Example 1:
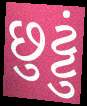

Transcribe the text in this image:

છુટ્ટું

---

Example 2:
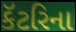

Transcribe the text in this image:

કૅટરિના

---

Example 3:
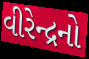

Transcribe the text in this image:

વીરેન્દ્રનો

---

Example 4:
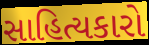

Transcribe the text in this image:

સાહિત્યકારો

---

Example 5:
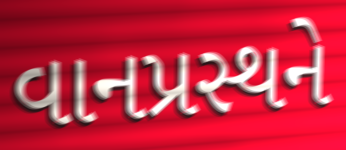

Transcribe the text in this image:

વાનપ્રસ્થને